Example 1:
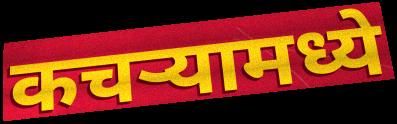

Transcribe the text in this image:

कचऱ्यामध्ये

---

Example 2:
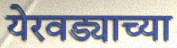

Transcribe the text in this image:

येरवड्याच्या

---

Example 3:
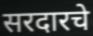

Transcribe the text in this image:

सरदारचे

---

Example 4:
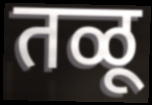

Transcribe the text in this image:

तळू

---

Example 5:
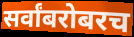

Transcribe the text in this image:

सर्वांबरोबरच